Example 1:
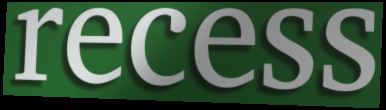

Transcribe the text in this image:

recess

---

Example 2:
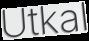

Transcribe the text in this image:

Utkal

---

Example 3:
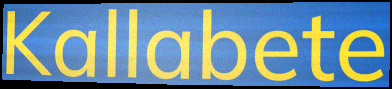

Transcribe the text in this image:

Kallabete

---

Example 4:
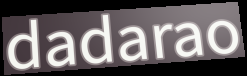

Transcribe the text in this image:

dadarao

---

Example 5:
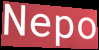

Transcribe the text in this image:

Nepo